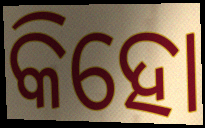
କିହୋ